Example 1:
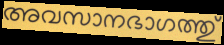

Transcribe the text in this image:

അവസാനഭാഗത്തു്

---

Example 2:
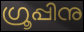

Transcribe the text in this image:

ഗ്രൂപ്പിനു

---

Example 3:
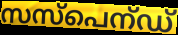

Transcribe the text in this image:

സസ്പെന്ഡ്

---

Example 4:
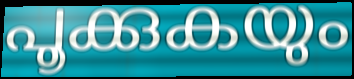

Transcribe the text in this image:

പൂക്കുകയും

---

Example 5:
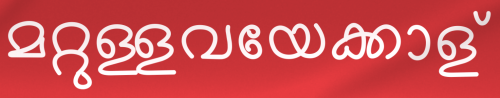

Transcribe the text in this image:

മറ്റുള്ളവയേക്കാള്